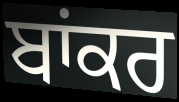
ਬਾਂਕਰ